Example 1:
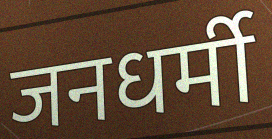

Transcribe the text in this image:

जनधर्मी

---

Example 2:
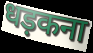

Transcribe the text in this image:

धड़कना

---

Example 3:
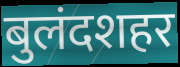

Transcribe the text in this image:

बुलंदशहर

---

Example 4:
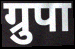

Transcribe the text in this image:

ग्रुपा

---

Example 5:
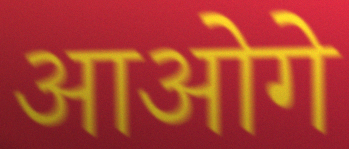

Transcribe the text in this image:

आओगे